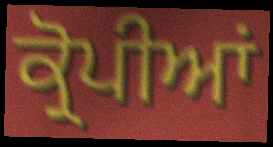
ਕ੍ਰੋਪੀਆਂ